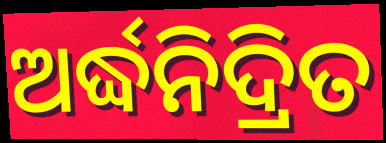
ଅର୍ଦ୍ଧନିଦ୍ରିତ